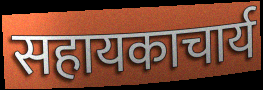
सहायकाचार्य